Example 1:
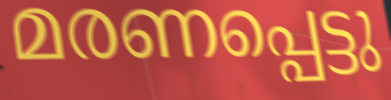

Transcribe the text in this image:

മരണപ്പെട്ടു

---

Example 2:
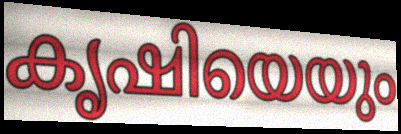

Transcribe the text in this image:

കൃഷിയെയും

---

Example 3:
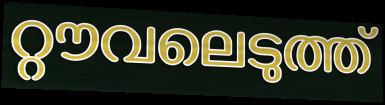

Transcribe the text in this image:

റ്റൗവലെടുത്ത്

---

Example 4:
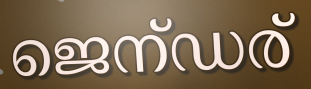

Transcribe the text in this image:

ജെന്ഡര്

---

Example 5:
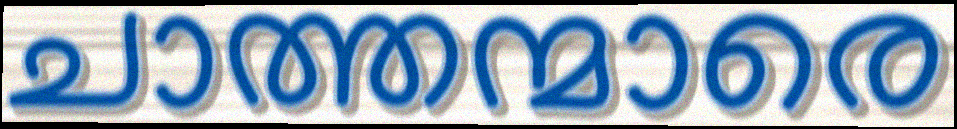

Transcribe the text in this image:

ചാത്തന്മാരെ